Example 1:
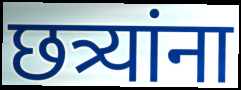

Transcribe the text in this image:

छत्र्यांना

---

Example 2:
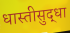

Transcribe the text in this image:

धास्तीसुद्धा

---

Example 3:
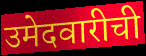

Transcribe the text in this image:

उमेदवारीची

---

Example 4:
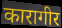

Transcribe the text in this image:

कारागीर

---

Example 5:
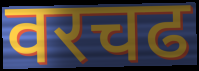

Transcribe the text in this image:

वरचढ